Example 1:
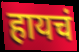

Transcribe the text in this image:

हायचं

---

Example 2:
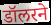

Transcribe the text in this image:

डॉलरने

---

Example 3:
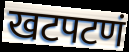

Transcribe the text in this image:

खटपटणं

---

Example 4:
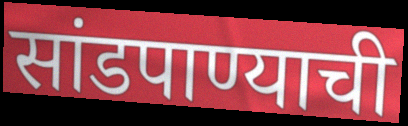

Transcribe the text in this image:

सांडपाण्याची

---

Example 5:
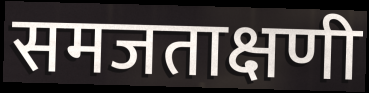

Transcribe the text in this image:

समजताक्षणी